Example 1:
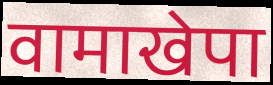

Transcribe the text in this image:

वामाखेपा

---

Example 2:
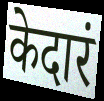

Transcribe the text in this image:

केदारं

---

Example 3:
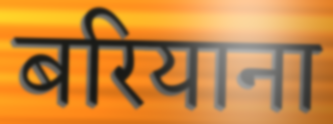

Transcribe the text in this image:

बरियाना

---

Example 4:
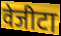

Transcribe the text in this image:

वेजीटा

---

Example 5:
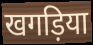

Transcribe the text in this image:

खगड़िया